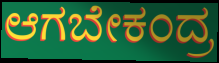
ಆಗಬೇಕಂದ್ರ